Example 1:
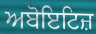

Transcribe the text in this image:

ਅਬੋਇਟਿਜ਼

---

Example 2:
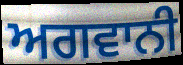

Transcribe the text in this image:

ਅਗਵਾਨੀ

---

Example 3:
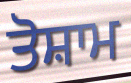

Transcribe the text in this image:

ਤੋਸ਼ਾਮ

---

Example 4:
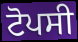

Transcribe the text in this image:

ਟੋਪਸੀ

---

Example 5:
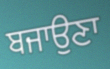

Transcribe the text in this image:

ਬਜਾਉਣਾ